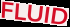
FLUID